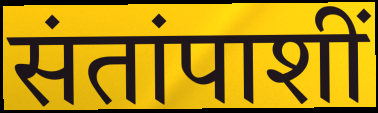
संतांपाशीं